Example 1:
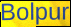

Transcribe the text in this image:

Bolpur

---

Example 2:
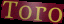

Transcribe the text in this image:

Toro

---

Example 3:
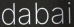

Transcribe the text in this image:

dabai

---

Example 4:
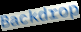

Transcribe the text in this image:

Backdrop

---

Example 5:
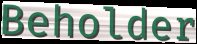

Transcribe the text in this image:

Beholder